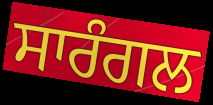
ਸਾਰੰਗਲ